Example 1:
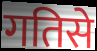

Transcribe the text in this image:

गतिसे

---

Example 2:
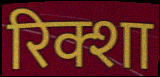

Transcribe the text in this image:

रिक्‍शा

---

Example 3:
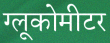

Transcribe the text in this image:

ग्लूकोमीटर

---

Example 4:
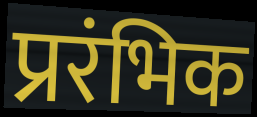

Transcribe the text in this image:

प्ररंभिक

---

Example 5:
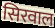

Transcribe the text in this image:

सिरवाल